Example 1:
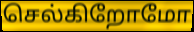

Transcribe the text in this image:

செல்கிறோமோ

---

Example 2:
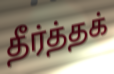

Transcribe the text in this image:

தீர்த்தக்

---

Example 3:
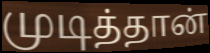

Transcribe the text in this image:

முடித்தான்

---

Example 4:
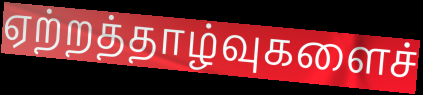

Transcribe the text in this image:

ஏற்றத்தாழ்வுகளைச்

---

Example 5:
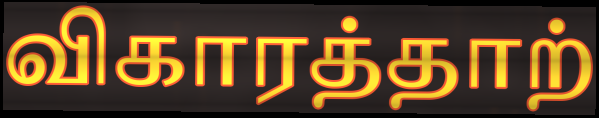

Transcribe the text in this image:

விகாரத்தாற்